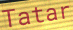
Tatar